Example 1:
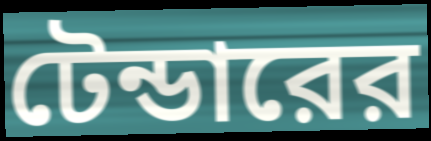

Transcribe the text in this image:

টেন্ডারের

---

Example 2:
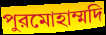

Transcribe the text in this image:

পুরমোহাম্মদি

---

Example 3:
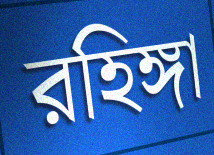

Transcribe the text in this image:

রহিঙ্গা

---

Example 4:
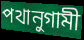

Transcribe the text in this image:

পথানুগামী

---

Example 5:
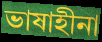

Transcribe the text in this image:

ভাষাহীনা